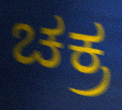
ಚಕ್ರ